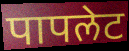
पापलेट